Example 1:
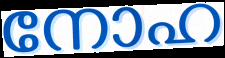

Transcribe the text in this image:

നോഹ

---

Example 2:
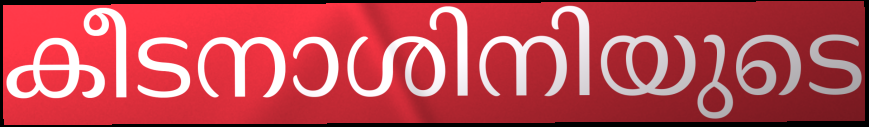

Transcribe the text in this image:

കീടനാശിനിയുടെ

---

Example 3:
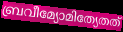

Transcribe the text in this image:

ബ്രവീമ്യോമിത്യേതത്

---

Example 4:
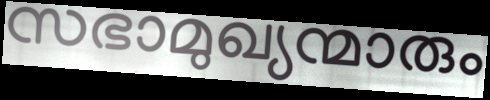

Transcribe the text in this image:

സഭാമുഖ്യന്മാരും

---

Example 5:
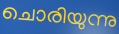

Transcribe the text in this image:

ചൊരിയുന്നു